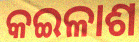
କଇଳାଶ